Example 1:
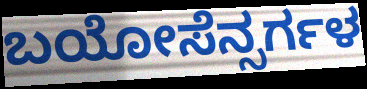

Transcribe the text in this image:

ಬಯೋಸೆನ್ಸರ್ಗಳ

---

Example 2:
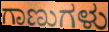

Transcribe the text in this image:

ಗಾಣುಗಳು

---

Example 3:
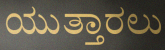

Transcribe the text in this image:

ಯುತ್ತಾರಲು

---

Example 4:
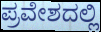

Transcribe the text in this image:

ಪ್ರವೇಶದಲ್ಲಿ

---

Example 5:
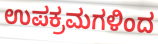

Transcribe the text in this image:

ಉಪಕ್ರಮಗಳಿಂದ